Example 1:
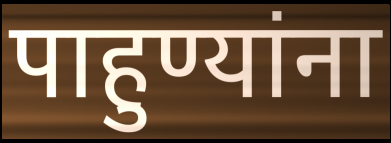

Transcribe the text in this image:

पाहुण्यांना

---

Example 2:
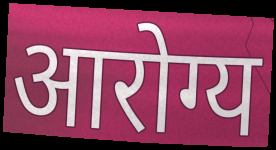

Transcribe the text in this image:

आरोग्य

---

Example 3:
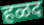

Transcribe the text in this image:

हळद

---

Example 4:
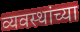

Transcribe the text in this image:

व्यवस्थांच्या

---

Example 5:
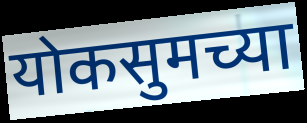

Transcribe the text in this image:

योकसुमच्या